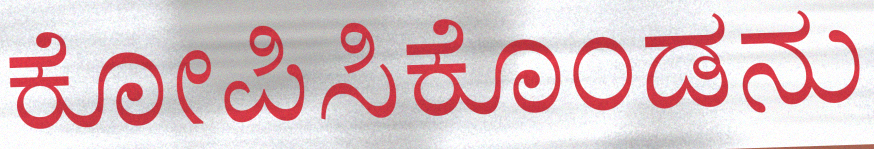
ಕೋಪಿಸಿಕೊಂಡನು